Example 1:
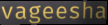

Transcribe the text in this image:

vageesha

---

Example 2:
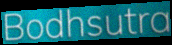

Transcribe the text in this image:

Bodhsutra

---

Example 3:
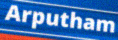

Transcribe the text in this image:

Arputham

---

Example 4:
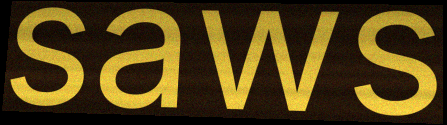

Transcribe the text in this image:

saws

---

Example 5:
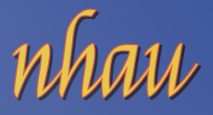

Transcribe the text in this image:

nhau